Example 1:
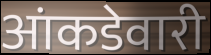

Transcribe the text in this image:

आंकडेवारी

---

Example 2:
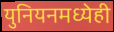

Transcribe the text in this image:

युनियनमध्येही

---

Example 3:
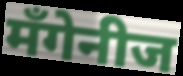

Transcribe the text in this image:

मँगेनीज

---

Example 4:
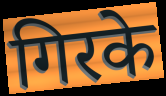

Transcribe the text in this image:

गिरके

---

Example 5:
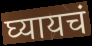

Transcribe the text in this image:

घ्यायचं